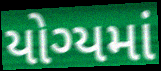
યોગ્યમાં